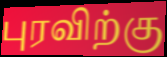
புரவிற்கு